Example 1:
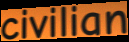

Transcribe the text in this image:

civilian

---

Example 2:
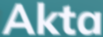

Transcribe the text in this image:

Akta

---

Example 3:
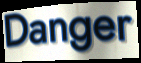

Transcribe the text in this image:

Danger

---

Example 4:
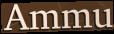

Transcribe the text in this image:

Ammu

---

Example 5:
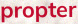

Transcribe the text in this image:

propter